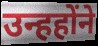
उन्हहोंने